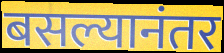
बसल्यानंतर